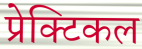
प्रेक्टिकल